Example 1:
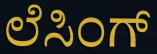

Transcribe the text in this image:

ಲೆಸಿಂಗ್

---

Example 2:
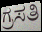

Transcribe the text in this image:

ಗ್ರಸತಿ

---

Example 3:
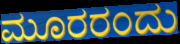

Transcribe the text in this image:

ಮೂರರಂದು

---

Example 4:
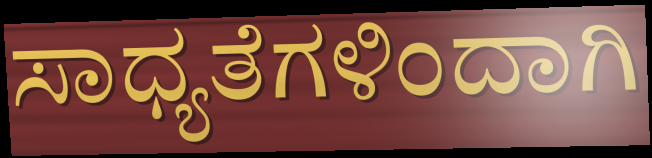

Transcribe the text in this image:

ಸಾಧ್ಯತೆಗಳಿಂದಾಗಿ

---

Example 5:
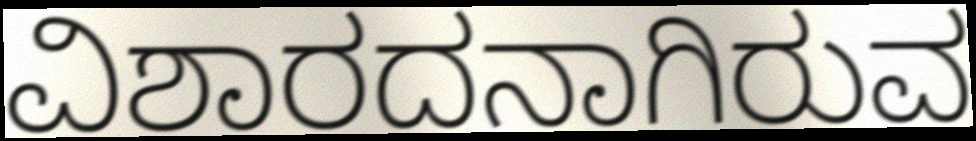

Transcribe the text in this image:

ವಿಶಾರದನಾಗಿರುವ